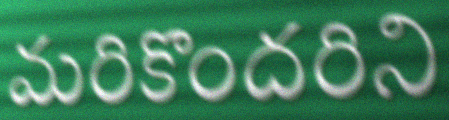
మరికొందరిని